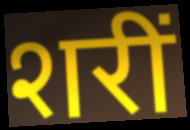
शरीं